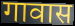
गावास